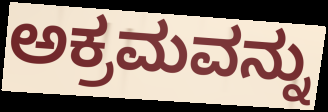
ಅಕ್ರಮವನ್ನು